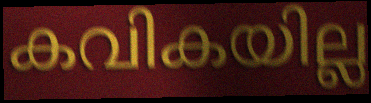
കവികയില്ല